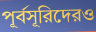
পূর্বসূরিদেরও